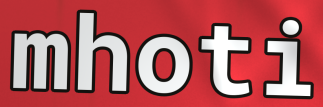
mhoti